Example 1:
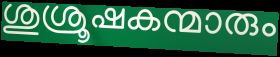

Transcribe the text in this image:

ശുശ്രൂഷകന്മാരും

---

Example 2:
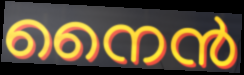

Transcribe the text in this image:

നൈൻ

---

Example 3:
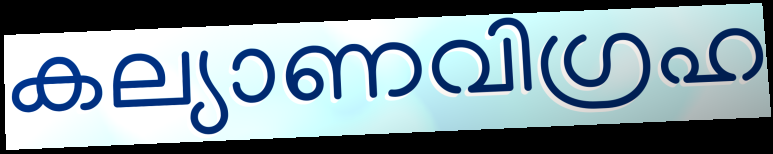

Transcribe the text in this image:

കല്യാണവിഗ്രഹ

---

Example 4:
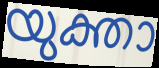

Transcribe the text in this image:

യുക്താ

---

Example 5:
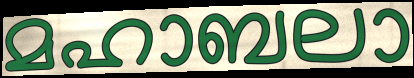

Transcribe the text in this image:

മഹാബലാ